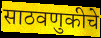
साठवणुकीचे